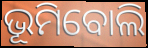
ଭୂମିବୋଲି